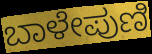
ಬಾಳೇಪುಣಿ